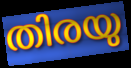
തിരയു